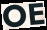
OE